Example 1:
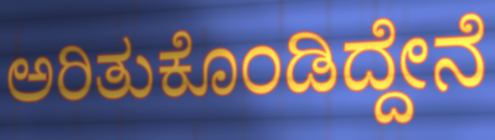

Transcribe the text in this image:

ಅರಿತುಕೊಂಡಿದ್ದೇನೆ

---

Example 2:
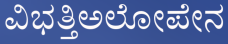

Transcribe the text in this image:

ವಿಭತ್ತಿಅಲೋಪೇನ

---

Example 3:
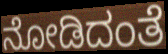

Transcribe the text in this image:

ನೋಡಿದಂತೆ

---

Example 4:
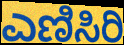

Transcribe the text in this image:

ಎಣಿಸಿರಿ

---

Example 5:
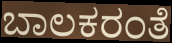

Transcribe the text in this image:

ಬಾಲಕರಂತೆ